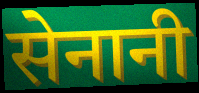
सेनानी